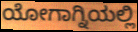
ಯೋಗಾಗ್ನಿಯಲ್ಲಿ